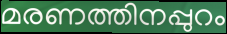
മരണത്തിനപ്പുറം